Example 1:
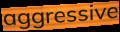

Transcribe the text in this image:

aggressive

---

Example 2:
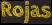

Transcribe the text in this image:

Rojas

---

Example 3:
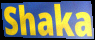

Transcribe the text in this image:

Shaka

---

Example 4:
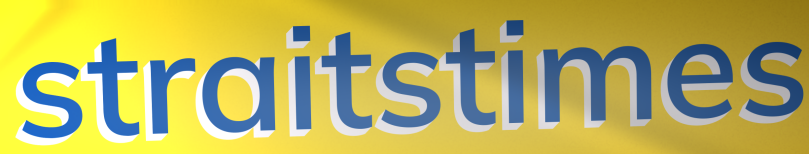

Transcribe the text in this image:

straitstimes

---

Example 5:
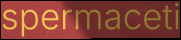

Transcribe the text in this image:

spermaceti